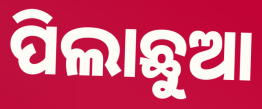
ପିଲାଛୁଆ